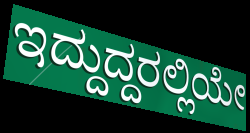
ಇದ್ದುದ್ದರಲ್ಲಿಯೇ